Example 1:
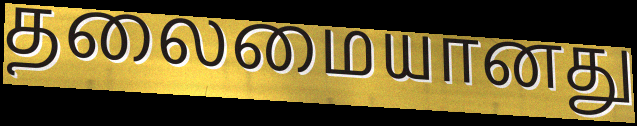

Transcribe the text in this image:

தலைமையானது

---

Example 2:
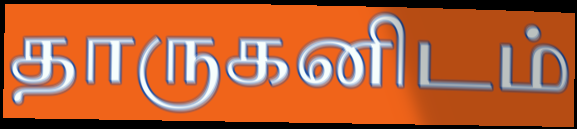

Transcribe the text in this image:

தாருகனிடம்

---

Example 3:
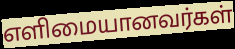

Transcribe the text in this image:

எளிமையானவர்கள்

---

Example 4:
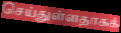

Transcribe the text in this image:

செய்துள்ளதாகக்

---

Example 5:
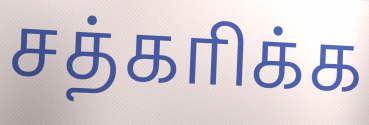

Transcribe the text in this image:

சத்கரிக்க